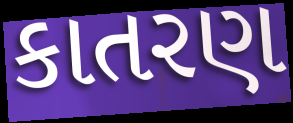
કાતરણ